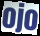
ojo